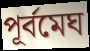
পূর্বমেঘ